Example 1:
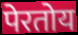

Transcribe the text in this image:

पेरतोय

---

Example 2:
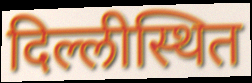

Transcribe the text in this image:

दिल्लीस्थित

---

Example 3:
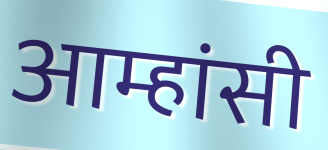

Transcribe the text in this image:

आम्हांसी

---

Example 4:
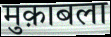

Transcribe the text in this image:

मुक़ाबला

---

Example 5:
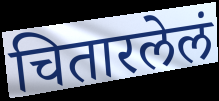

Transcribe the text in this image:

चितारलेलं